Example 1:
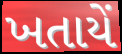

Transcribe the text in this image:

ખતાયેં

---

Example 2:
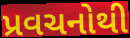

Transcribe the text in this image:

પ્રવચનોથી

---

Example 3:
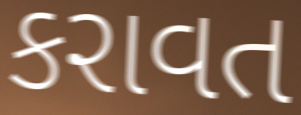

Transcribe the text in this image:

કરાવત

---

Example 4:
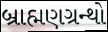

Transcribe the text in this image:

બ્રાહ્મણગ્રન્થો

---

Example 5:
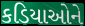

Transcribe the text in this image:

કડિયાઓને